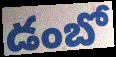
డంబో